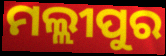
ମଲ୍ଲୀପୁର